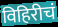
विहिरीचं